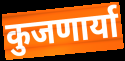
कुजणार्या